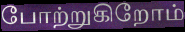
போற்றுகிறோம்